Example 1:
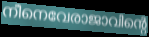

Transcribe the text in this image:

നീനെവേരാജാവിന്റെ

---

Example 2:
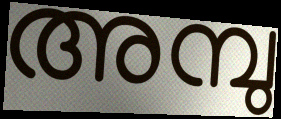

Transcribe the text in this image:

അമ്പു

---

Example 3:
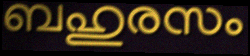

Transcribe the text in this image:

ബഹുരസം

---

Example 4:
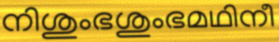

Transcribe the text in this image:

നിശുംഭശുംഭമഥിനീ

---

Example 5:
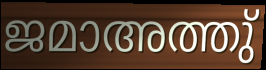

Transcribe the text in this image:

ജമാഅത്തു്